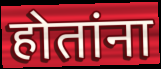
होतांना